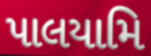
પાલયામિ